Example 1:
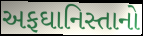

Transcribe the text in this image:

અફઘાનિસ્તાનો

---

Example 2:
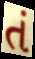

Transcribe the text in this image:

તં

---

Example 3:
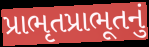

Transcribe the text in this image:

પ્રાભૃતપ્રાભૂતનું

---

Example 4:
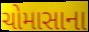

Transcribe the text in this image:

ચોમાસાના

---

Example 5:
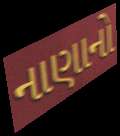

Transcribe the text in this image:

નાણાનો